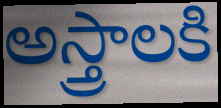
అస్త్రాలకి